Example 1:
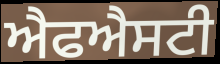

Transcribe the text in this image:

ਐਫਐਸਟੀ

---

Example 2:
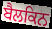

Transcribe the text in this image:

ਬੈਲਕਿਨ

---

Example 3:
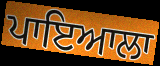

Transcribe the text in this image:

ਪਾਇਆਲਾ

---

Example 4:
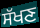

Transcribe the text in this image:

ਸੱਖਣ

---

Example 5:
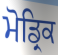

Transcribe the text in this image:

ਮੋਡ੍ਰਿਕ